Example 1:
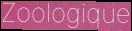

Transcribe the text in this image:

Zoologique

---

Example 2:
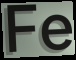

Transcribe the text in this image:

Fe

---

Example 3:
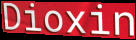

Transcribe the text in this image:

Dioxin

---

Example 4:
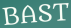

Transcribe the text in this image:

BAST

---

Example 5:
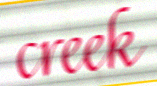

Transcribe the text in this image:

creek